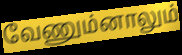
வேணும்னாலும்